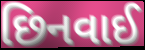
છિનવાઈ